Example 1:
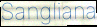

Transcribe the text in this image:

Sangliana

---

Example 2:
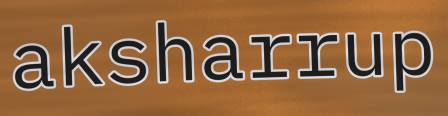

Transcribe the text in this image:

aksharrup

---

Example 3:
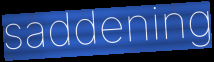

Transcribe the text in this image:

saddening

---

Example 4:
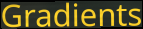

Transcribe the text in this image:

Gradients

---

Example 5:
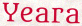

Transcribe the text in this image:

Yeara